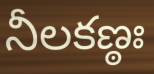
నీలకణ్ఠః